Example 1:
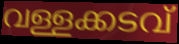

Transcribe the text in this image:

വള്ളക്കടവ്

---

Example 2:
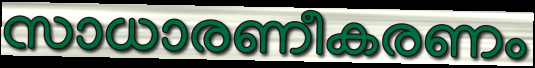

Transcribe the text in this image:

സാധാരണീകരണം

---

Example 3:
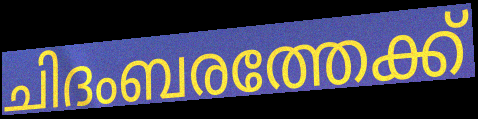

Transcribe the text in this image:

ചിദംബരത്തേക്ക്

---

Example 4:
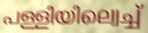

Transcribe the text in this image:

പള്ളിയില്വെച്ച്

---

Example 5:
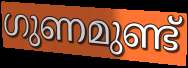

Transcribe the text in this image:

ഗുണമുണ്ട്